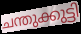
ചന്തുക്കുട്ടി